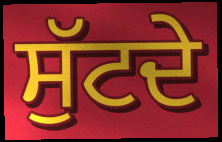
ਸੁੱਟਦੇ